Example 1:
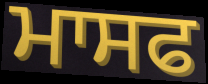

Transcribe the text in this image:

ਮਾਸਫ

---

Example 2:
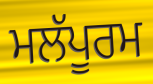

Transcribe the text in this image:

ਮਲੱਪੂਰਮ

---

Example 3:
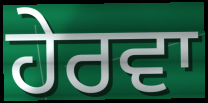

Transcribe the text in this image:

ਹੇਰਵਾ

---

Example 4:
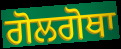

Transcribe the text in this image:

ਗੋਲਗੋਥਾ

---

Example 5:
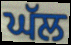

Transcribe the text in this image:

ਘੱਲ